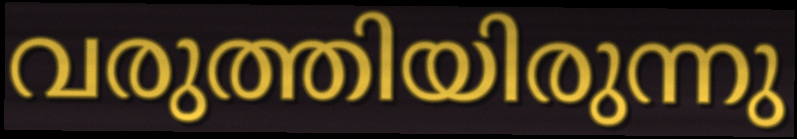
വരുത്തിയിരുന്നു